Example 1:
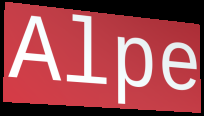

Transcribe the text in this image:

Alpe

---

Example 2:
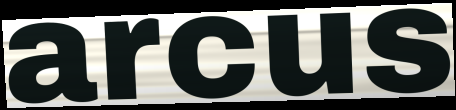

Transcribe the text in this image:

arcus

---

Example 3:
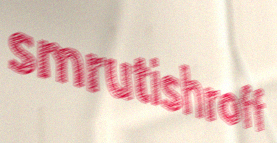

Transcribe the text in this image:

smrutishroff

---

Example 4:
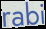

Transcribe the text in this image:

rabi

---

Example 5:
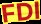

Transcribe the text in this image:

FDI